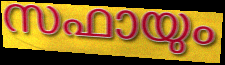
സഫായും